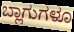
ಬ್ಲಾಗುಗಳೂ